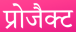
प्रोजैक्ट